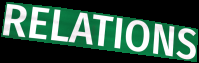
RELATIONS